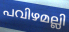
പവിഴമല്ലി